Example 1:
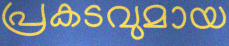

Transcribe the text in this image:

പ്രകടവുമായ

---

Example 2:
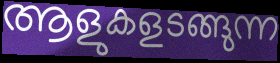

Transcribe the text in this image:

ആളുകളടങ്ങുന്ന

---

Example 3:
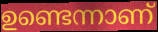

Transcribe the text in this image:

ഉണ്ടെന്നാണ്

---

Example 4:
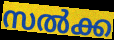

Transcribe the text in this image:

സൽക്ക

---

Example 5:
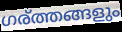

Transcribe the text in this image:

ഗര്ത്തങ്ങളും